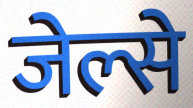
जेल्से